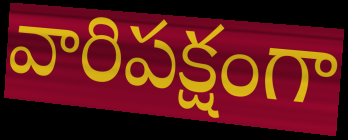
వారిపక్షంగా